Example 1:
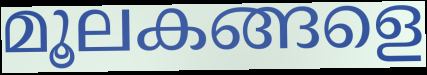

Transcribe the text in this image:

മൂലകങ്ങളെ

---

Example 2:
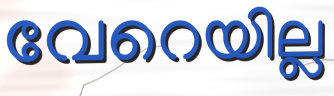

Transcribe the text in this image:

വേറെയില്ല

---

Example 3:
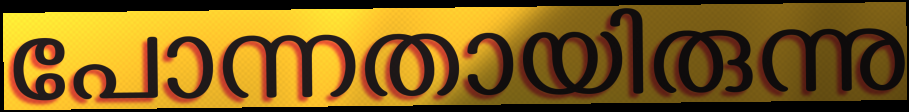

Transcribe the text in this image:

പോന്നതായിരുന്നു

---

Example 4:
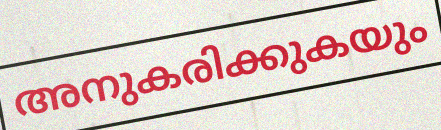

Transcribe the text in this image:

അനുകരിക്കുകയും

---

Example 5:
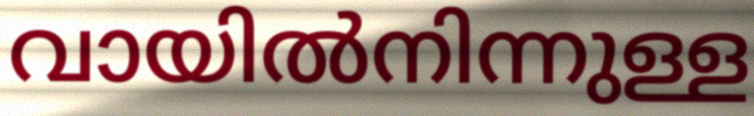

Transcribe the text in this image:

വായിൽനിന്നുള്ള